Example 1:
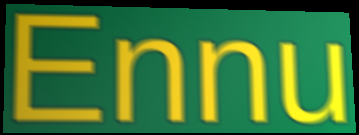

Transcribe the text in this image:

Ennu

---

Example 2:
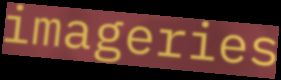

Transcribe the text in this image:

imageries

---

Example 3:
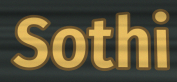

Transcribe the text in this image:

Sothi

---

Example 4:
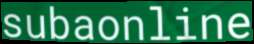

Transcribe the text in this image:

subaonline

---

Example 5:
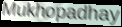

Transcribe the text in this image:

Mukhopadhay